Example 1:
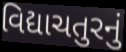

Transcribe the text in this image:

વિદ્યાચતુરનું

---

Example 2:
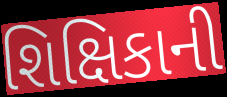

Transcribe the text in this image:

શિક્ષિકાની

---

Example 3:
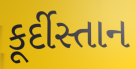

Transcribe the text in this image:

કૂર્દીસ્તાન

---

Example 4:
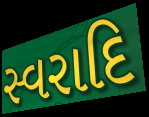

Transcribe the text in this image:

સ્વરાદિ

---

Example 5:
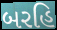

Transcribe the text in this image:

બરહિ